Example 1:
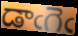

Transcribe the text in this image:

డాఁగెఁ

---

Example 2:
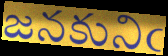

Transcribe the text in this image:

జనకునిఁ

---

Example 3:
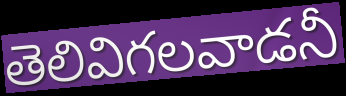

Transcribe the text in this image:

తెలివిగలవాడనీ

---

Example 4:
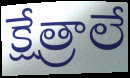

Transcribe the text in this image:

క్షేత్రాలే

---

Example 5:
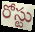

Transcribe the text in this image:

రోస్టు